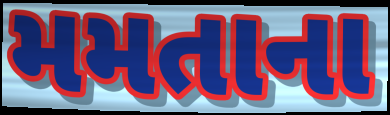
મમતાના